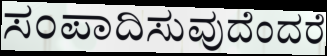
ಸಂಪಾದಿಸುವುದೆಂದರೆ